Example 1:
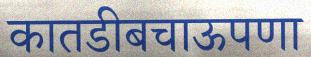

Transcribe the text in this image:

कातडीबचाऊपणा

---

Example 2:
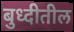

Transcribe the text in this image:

बुध्दीतील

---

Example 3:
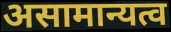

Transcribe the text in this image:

असामान्यत्व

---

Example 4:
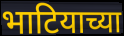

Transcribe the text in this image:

भाटियाच्या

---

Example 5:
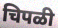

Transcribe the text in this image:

चिपळी